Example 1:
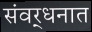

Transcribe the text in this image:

संवर्धनात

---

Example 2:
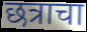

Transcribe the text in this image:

छत्राचा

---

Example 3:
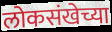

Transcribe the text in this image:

लोकसंखेच्या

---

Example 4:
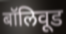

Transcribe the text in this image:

बॉलिवूड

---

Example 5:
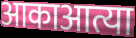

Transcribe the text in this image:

आकाआत्या